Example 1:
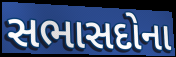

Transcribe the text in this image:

સભાસદોના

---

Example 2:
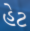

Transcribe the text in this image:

હેટ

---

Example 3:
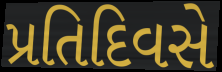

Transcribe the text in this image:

પ્રતિદિવસે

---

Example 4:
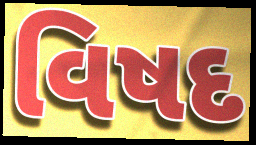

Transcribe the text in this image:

વિષદ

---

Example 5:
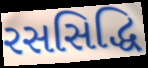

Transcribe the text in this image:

રસસિદ્ધિ